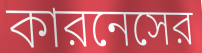
কারনেসের